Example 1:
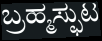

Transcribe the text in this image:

ಬ್ರಹ್ಮಸ್ಫುಟ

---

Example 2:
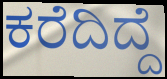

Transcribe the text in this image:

ಕರೆದಿದ್ದೆ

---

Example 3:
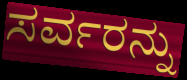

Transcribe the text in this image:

ಸರ್ವರನ್ನು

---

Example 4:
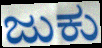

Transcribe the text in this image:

ಜುಕು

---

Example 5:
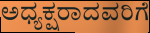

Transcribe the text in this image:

ಅಧ್ಯಕ್ಷರಾದವರಿಗೆ